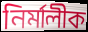
নিৰ্মালীক